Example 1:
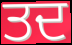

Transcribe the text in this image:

ਤਦ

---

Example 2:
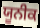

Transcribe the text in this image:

ਯੂਨੀਕ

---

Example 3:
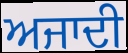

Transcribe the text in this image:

ਅਜਾਦੀ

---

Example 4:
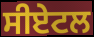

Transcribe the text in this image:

ਸੀਏਟਲ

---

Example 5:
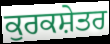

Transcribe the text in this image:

ਕੁਰਕਸ਼ੇਤਰ